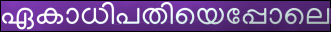
ഏകാധിപതിയെപ്പോലെ